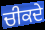
ਚੀਕਦੇ